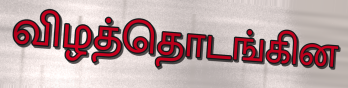
விழத்தொடங்கின